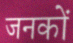
जनकों